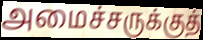
அமைச்சருக்குத்